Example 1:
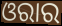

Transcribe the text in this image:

ଓରାର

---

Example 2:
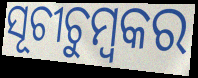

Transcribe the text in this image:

ସୂଚୀଚୁମ୍ବକର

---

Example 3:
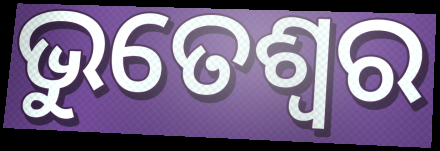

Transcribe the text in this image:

ଭୁତେଶ୍ୱର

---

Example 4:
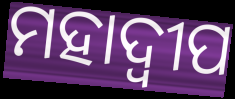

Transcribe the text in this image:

ମହାଦ୍ୱୀପ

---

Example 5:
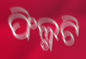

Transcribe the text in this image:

ଫିଲ୍ମଟି